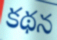
కథన